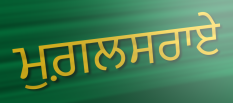
ਮੁਗ਼ਲਸਰਾਏ